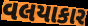
વલયાકાર